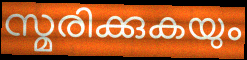
സ്മരിക്കുകയും